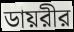
ডায়রীর